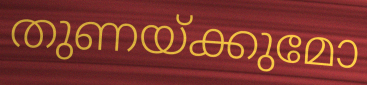
തുണയ്ക്കുമോ